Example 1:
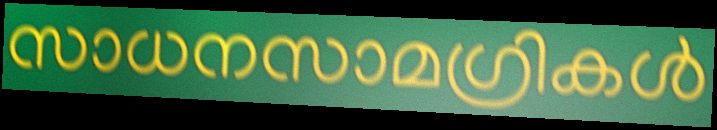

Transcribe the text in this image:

സാധനസാമഗ്രികൾ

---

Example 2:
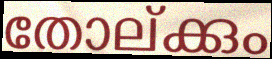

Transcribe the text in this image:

തോല്ക്കും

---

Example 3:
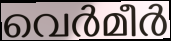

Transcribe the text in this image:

വെർമീർ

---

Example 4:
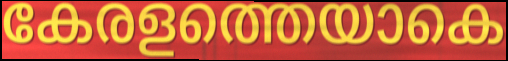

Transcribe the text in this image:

കേരളത്തെയാകെ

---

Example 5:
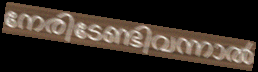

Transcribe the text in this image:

നേരിടേണ്ടിവന്നാൽ